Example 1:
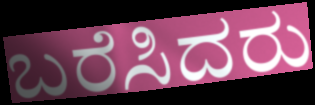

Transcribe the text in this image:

ಬರೆಸಿದರು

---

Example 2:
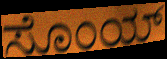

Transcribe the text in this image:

ಸೊಂಯ್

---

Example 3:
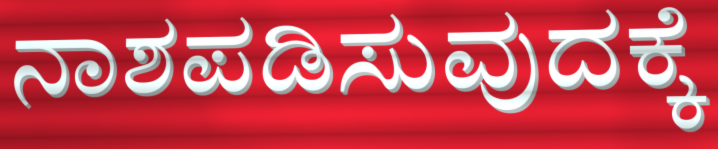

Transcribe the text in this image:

ನಾಶಪಡಿಸುವುದಕ್ಕೆ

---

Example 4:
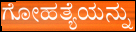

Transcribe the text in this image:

ಗೋಹತ್ಯೆಯನ್ನು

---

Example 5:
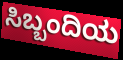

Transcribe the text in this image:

ಸಿಬ್ಬಂದಿಯ